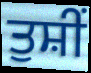
ਤੁਸ਼ੀਂ